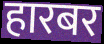
हारबर